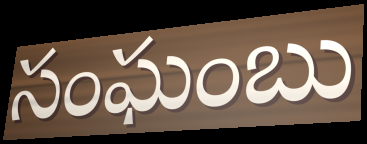
సంఘంబు